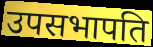
उपसभापति